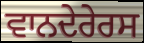
ਵਾਨਦੇਰੇਰਸ